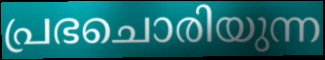
പ്രഭചൊരിയുന്ന